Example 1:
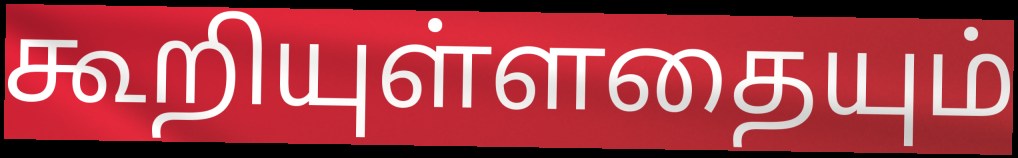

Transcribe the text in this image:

கூறியுள்ளதையும்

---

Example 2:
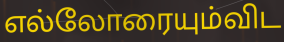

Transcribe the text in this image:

எல்லோரையும்விட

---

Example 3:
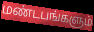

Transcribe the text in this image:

மண்டபங்களும்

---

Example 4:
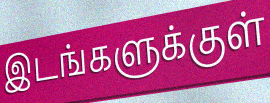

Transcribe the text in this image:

இடங்களுக்குள்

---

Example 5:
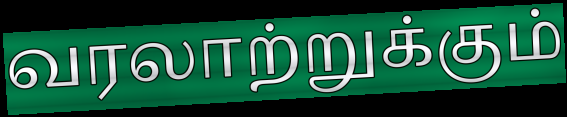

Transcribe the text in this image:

வரலாற்றுக்கும்